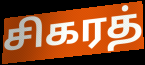
சிகரத்